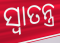
ସ୍ୱାତନ୍ତ୍ର